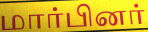
மார்பினர்